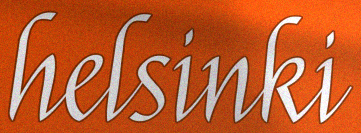
helsinki